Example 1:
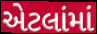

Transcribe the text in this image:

એટલાંમાં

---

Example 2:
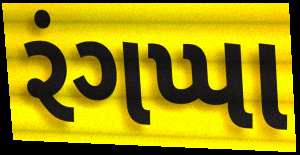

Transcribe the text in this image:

રંગપ્પા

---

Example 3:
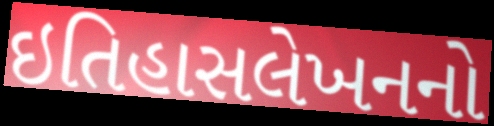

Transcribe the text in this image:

ઇતિહાસલેખનનો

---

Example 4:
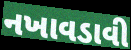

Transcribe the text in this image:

નખાવડાવી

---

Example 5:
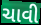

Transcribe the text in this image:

ચાવી